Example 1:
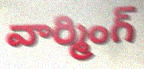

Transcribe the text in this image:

వార్మింగ్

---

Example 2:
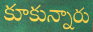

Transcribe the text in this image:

కూకున్నారు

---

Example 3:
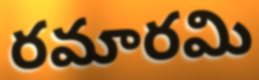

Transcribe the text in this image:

రమారమి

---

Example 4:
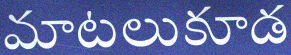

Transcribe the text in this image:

మాటలుకూడ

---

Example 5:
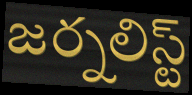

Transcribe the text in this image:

జర్నలిస్ట్